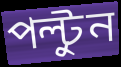
পল্টুন